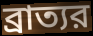
ব্রাত্যর